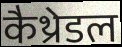
कैथ्रेडल